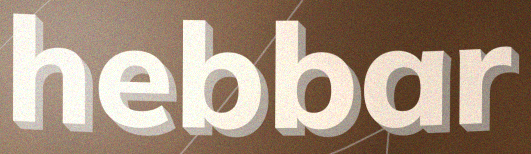
hebbar